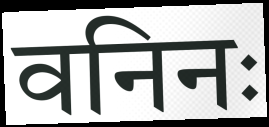
वनिनः